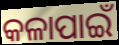
କଳାପାଇଁ